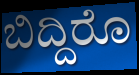
ಬಿದ್ದಿರೊ